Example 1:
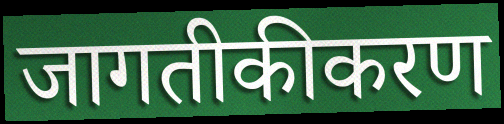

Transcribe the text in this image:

जागतीकीकरण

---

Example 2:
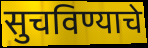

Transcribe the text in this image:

सुचविण्याचे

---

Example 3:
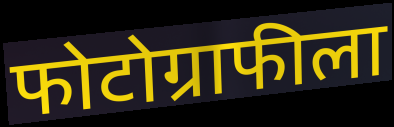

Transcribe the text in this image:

फोटोग्राफीला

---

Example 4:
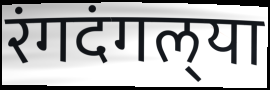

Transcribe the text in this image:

रंगदंगल्या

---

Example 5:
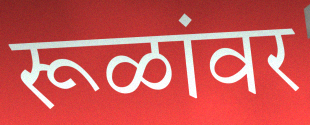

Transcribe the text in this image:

रूळांवर